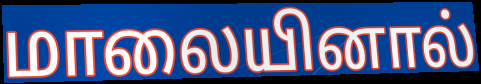
மாலையினால்